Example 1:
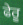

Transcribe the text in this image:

ਫੇਰੂ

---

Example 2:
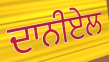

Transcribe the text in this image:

ਦਾਨੀਏਲ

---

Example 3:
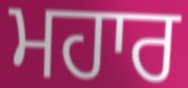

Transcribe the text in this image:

ਮਹਾਰ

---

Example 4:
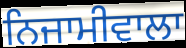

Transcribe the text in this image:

ਨਿਜਾਮੀਵਾਲਾ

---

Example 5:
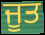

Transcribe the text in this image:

ਜੂਤ